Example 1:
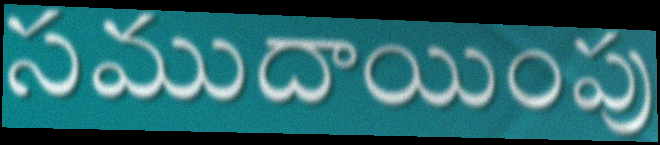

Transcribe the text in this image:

సముదాయింపు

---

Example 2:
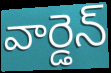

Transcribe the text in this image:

వార్డెన్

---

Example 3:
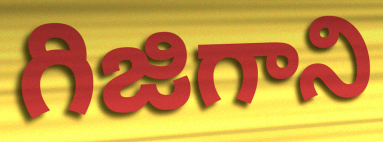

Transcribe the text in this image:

గిజిగాని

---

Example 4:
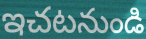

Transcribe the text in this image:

ఇచటనుండి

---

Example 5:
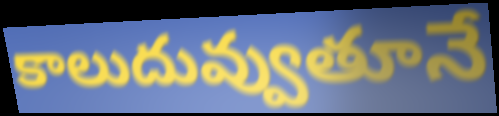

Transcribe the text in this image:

కాలుదువ్వుతూనే